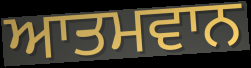
ਆਤਮਵਾਨ